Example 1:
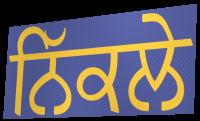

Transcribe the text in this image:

ਨਿੱਕਲੇ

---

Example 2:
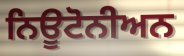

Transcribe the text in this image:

ਨਿਊਟੋਨੀਅਨ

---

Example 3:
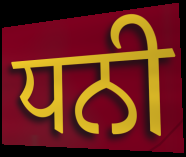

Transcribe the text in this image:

ਧਨੀ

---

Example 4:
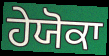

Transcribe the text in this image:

ਹੇਯੋਕਾ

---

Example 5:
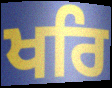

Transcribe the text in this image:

ਖਰਿ